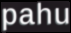
pahu